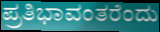
ಪ್ರತಿಭಾವಂತರೆಂದು